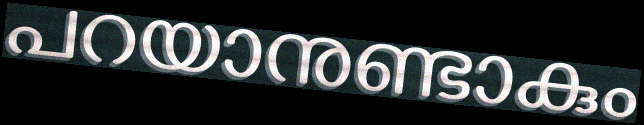
പറയാനുണ്ടാകും